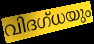
വിദഗ്ധയും